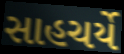
સાહચર્યે